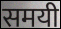
समयी